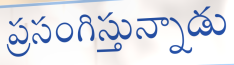
ప్రసంగిస్తున్నాడు